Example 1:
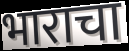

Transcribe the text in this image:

भाराचा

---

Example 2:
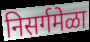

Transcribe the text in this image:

निसर्गमेळा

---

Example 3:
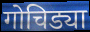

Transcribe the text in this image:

गोचिड्या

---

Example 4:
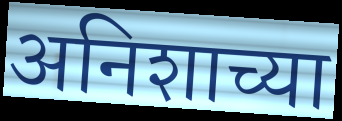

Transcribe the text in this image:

अनिशाच्या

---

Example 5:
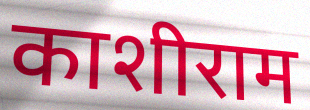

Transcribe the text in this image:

काशीराम